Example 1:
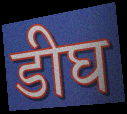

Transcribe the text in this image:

डीघ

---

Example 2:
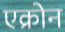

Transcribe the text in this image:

एक्रोन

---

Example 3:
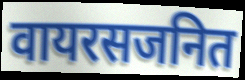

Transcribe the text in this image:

वायरसजनित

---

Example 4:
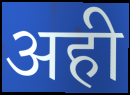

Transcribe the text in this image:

अही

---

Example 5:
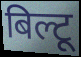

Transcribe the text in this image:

बिल्टू